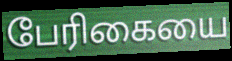
பேரிகையை